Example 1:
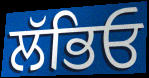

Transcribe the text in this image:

ਲੱਭਿਓ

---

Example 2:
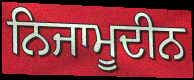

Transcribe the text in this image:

ਨਿਜਾਮੂਦੀਨ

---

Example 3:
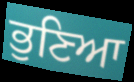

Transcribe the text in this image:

ਭੁਣਿਆ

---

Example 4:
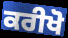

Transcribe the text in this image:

ਕਰੀਖੋ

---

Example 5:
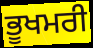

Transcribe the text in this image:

ਭੂਖਮਰੀ